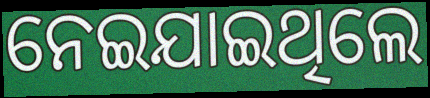
ନେଇଯାଇଥିଲେ